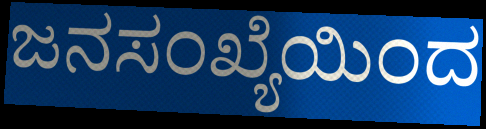
ಜನಸಂಖ್ಯೆಯಿಂದ